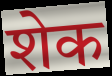
शेक